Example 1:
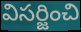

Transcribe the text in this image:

విసర్జించి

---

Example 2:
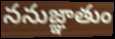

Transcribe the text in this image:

ననుజ్ఞాతుం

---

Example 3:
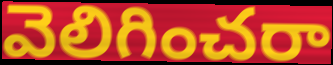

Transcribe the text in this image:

వెలిగించరా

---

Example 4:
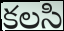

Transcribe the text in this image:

కలసి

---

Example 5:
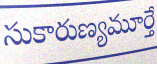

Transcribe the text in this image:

సుకారుణ్యమూర్తే